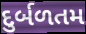
દુર્બળતમ